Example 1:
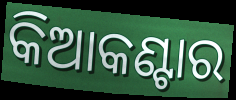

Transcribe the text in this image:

କିଆକଣ୍ଟାର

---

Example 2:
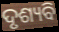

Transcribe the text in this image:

ଦୃଶ୍ୟବି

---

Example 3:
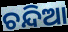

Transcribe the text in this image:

ଚନ୍ଦିଆ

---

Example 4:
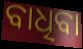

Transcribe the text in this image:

ବାଧିବା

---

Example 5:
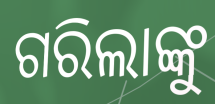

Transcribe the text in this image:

ଗରିଲାଙ୍କୁ